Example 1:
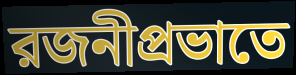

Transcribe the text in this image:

রজনীপ্রভাতে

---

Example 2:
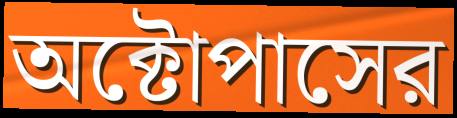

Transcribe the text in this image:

অক্টোপাসের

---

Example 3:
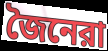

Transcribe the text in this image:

জৈনেরা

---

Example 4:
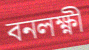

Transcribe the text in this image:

বনলক্ষ্ণী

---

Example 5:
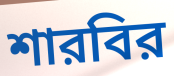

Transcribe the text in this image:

শারবির